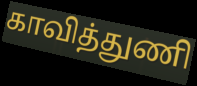
காவித்துணி